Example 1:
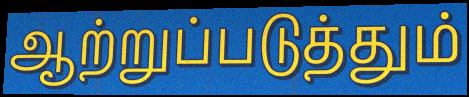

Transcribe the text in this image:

ஆற்றுப்படுத்தும்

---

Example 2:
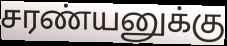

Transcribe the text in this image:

சரண்யனுக்கு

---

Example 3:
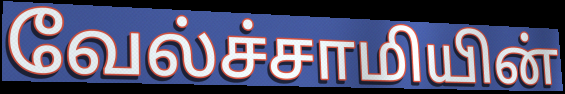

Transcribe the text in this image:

வேல்ச்சாமியின்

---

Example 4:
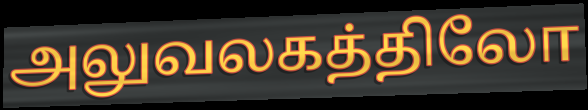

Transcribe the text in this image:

அலுவலகத்திலோ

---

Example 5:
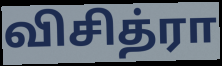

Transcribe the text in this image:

விசித்ரா